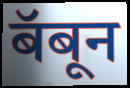
बॅबून